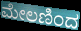
ಮೇಲಣಿಂದ